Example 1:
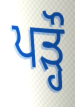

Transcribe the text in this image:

ਪੜ੍ਹੌ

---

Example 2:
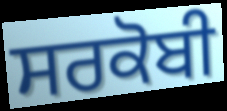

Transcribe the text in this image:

ਸਰਕੋਬੀ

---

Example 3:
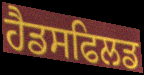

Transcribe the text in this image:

ਹੈਡਸਫਿਲਡ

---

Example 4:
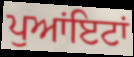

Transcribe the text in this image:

ਪੁਆਂਇਟਾਂ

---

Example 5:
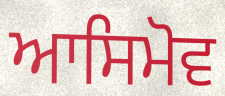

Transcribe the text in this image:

ਆਸਿਮੋਵ